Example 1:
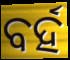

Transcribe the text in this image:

ବର୍ହ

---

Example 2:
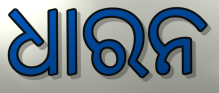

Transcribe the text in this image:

ଧାରନ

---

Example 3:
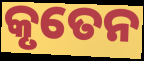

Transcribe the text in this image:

କୃତେନ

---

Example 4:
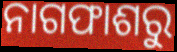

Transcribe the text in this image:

ନାଗଫାଶରୁ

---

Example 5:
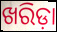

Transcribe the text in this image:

ଖରିଡ଼ା